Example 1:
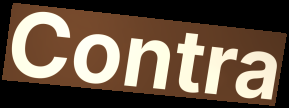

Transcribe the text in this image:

Contra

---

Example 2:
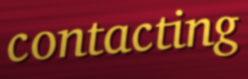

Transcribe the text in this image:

contacting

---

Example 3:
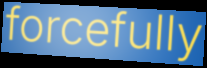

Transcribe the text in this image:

forcefully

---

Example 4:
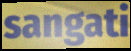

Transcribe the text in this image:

sangati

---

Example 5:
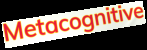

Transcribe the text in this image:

Metacognitive